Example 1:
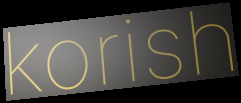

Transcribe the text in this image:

korish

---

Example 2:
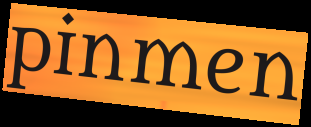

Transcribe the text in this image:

pinmen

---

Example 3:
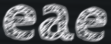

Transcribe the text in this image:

eae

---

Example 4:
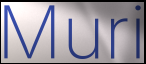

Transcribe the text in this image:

Muri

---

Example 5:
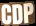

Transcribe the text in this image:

CDP